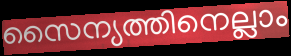
സൈന്യത്തിനെല്ലാം